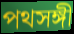
পথসঙ্গী